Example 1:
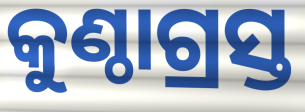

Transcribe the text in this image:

କୁଣ୍ଠାଗ୍ରସ୍ତ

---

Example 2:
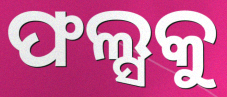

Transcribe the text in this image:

ଫଲ୍ସକୁ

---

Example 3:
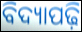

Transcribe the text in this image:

ବିଦ୍ୟାପଢ଼ି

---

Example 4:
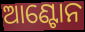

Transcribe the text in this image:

ଆଣ୍ଟୋନ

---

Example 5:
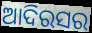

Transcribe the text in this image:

ଆଦିରସର